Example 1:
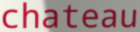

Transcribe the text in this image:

chateau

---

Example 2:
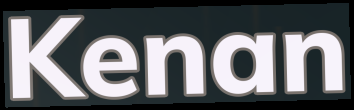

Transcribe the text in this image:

Kenan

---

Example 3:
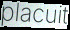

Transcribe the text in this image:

placuit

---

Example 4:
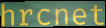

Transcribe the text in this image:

hrcnet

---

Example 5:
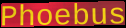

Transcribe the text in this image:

Phoebus